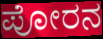
ಪೋರನ